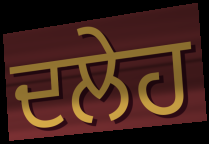
ਦਲੇਹ